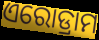
ଏରୋଡ୍ରାମ